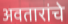
अवतारांचे